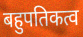
बहुपतिकत्व